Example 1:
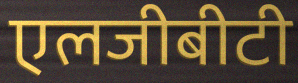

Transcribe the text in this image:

एलजीबीटी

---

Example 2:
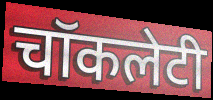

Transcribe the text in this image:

चॉकलेटी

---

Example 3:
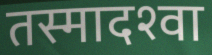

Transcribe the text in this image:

तस्मादश्वा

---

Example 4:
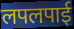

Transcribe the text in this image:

लपलपाई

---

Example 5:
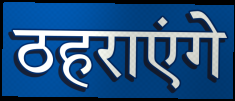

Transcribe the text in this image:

ठहराएंगे